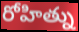
రోహిత్ను